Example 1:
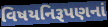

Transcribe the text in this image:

વિષયનિરૂપણનાં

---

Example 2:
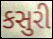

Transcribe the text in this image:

કસુરી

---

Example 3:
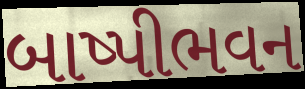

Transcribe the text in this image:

બાષ્પીભવન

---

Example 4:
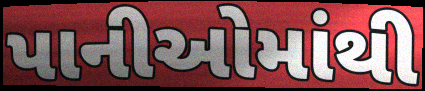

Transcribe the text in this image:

પાનીઓમાંથી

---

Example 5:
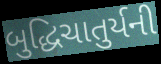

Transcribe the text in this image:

બુદ્ધિચાતુર્યની